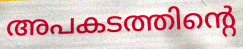
അപകടത്തിന്റെ